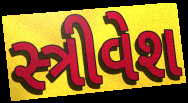
સ્ત્રીવેશ